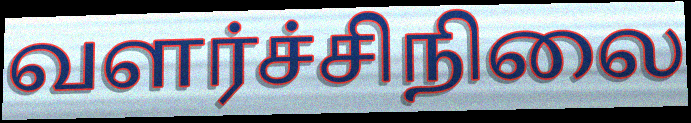
வளர்ச்சிநிலை